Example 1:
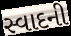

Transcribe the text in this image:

સ્વાદની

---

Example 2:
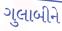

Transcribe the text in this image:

ગુલાબીને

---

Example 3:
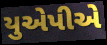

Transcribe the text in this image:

યુએપીએ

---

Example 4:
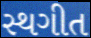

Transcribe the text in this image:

સ્થગીત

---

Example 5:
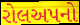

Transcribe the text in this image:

રોલઅપનો